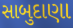
સાબુદાણા